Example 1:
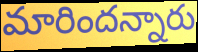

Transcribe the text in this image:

మారిందన్నారు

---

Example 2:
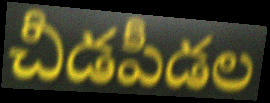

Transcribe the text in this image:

చీడపీడల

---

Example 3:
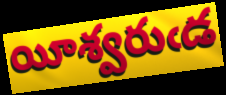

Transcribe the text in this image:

యీశ్వరుఁడ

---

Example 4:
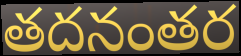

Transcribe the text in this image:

తదనంతర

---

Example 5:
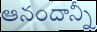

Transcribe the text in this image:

ఆనందాన్నీ